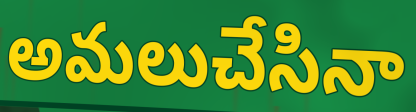
అమలుచేసినా